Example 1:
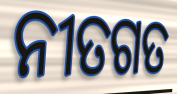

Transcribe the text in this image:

ନୀତଗତ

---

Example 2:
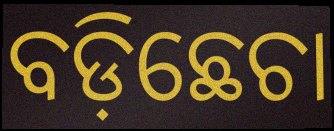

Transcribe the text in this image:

ବଡ଼ିଛେଚା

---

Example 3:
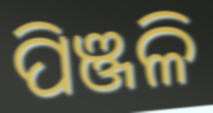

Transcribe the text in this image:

ପିଞ୍ଜଳି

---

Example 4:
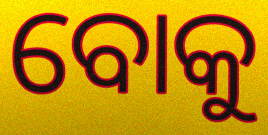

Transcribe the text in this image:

ବୋକୁ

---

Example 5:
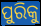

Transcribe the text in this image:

ପୁରିକୁ